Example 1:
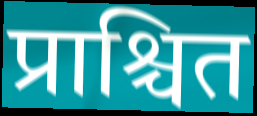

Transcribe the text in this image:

प्राश्चित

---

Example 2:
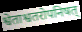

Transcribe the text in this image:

श्वेताश्वतरोपनिषत्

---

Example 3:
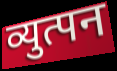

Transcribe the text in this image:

व्युत्पन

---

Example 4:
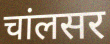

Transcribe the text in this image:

चांलसर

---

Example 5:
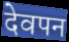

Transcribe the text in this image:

देवपन